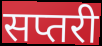
सप्तरी